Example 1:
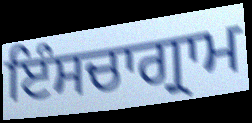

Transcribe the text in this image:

ਇੰਸਚਾਗ੍ਰਾਮ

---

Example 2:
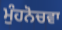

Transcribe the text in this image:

ਮੁੰਹਨੋਚਵਾ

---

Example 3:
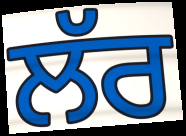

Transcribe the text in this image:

ਲੱਰ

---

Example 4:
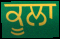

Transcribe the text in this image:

ਕੂਲਾ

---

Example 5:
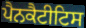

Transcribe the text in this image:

ਪੈਨਕੈਟੀਟਿਸ